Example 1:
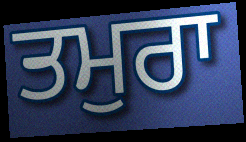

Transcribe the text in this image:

ਤਮੁਰਾ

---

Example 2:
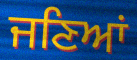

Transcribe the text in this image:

ਜਣਿਆਂ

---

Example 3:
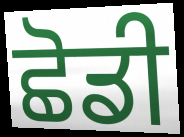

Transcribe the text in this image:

ਛੋਡੀ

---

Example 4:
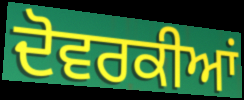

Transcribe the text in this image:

ਦੋਵਰਕੀਆਂ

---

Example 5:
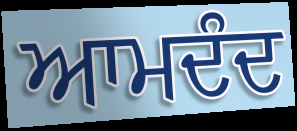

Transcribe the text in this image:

ਆਮਦੰਦ